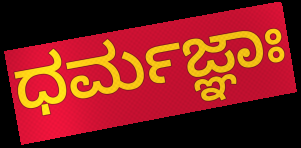
ಧರ್ಮಜ್ಞಾಃ